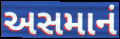
અસમાનં